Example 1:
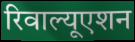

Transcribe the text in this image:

रिवाल्यूएशन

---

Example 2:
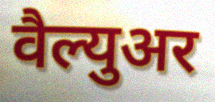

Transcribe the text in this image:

वैल्युअर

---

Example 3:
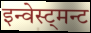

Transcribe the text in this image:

इन्वेस्ट्मन्ट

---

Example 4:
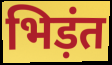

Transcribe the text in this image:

भिड़ंत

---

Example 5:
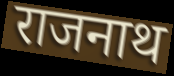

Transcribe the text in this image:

राजनाथ